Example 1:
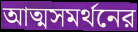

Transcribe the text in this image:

আত্মসমর্থনের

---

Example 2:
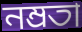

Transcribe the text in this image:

নম্রতা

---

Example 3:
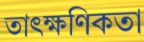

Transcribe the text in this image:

তাৎক্ষণিকতা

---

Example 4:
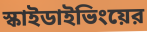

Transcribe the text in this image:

স্কাইডাইভিংয়ের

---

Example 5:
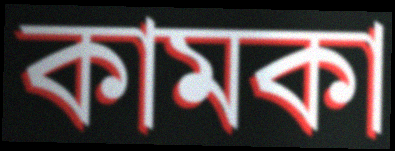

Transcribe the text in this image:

কামকা